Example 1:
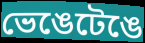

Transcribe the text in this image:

ভেঙেটেঙে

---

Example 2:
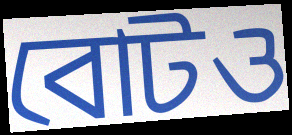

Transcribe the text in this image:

বোটও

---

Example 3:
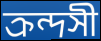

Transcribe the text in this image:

ক্রন্দসী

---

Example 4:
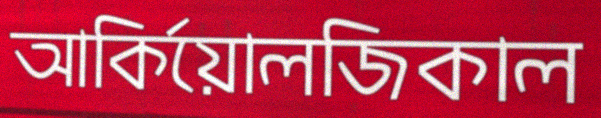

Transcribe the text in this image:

আর্কিয়োলজিকাল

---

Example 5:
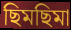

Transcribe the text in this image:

ছিমছিমা